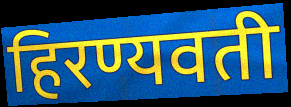
हिरण्यवती